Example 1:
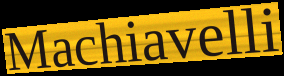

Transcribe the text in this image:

Machiavelli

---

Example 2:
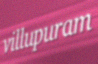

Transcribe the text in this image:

villupuram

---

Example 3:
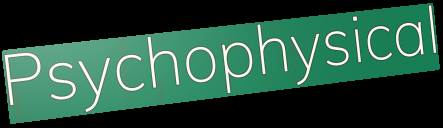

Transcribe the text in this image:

Psychophysical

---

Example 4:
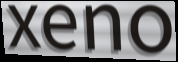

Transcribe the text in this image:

xeno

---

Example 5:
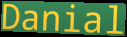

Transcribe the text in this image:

Danial